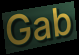
Gab